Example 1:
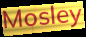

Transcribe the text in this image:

Mosley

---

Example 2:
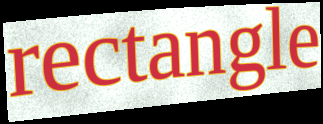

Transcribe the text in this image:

rectangle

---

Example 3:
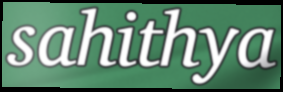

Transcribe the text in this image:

sahithya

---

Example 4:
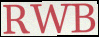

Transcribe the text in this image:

RWB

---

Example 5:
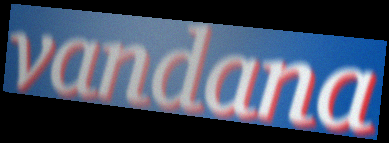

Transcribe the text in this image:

vandana